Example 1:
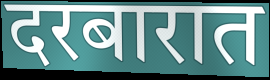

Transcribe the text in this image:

दरबारात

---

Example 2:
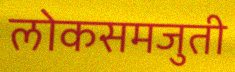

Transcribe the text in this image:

लोकसमजुती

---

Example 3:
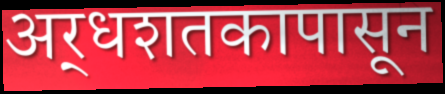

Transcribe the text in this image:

अर्धशतकापासून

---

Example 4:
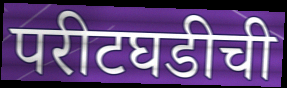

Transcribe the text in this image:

परीटघडीची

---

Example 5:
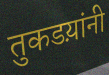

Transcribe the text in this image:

तुकडय़ांनी